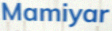
Mamiyar